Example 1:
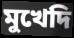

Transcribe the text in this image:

মুখেদি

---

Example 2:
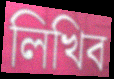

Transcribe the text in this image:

লিখিব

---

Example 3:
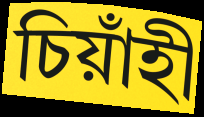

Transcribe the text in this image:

চিয়াঁহী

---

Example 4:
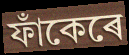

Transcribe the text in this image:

ফাঁকেৰে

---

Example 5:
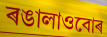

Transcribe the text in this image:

ৰঙালাওবোৰ